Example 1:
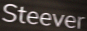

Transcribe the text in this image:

Steever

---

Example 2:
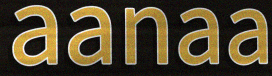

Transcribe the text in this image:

aanaa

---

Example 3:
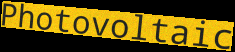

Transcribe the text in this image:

Photovoltaic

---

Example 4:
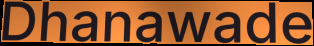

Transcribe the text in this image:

Dhanawade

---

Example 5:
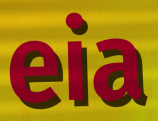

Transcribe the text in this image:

eia